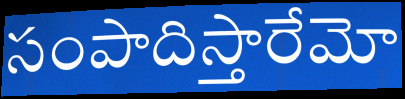
సంపాదిస్తారేమో